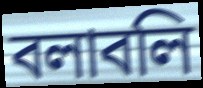
বলাবলি